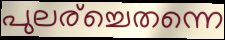
പുലര്ച്ചെതന്നെ